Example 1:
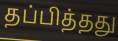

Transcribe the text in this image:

தப்பித்தது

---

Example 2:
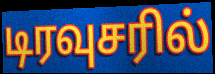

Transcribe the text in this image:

டிரவுசரில்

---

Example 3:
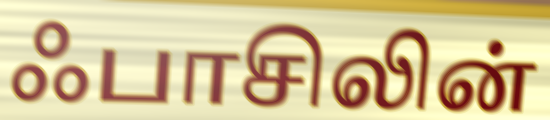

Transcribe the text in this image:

ஃபாசிலின்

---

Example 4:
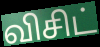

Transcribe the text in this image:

விசிட்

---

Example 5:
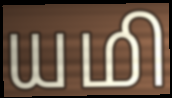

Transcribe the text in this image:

யமி